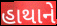
હાથાને